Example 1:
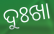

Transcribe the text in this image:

ଦୁଃଖା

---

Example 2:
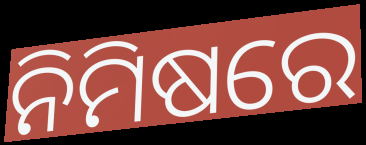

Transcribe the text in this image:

ନିମିଷରେ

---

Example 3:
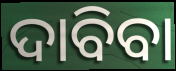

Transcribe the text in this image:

ଦାବିବା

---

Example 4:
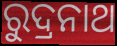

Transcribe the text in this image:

ରୁଦ୍ରନାଥ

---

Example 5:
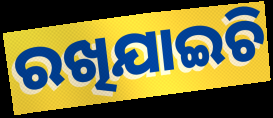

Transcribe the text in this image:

ରଖିଯାଇଚି